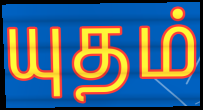
யுதம்